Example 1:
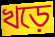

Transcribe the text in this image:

খড়ে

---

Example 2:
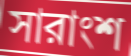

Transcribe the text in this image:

সারাংশ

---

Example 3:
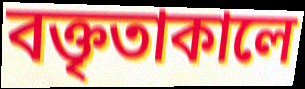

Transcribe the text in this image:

বক্তৃতাকালে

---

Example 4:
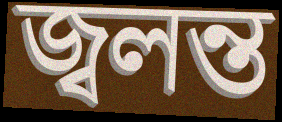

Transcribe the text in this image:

জ্বলন্ত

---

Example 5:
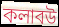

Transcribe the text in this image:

কলাবউ